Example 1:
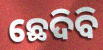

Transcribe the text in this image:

ଛେଦିବି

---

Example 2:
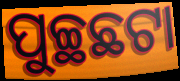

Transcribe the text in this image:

ପୁଚ୍ଛଛଟା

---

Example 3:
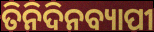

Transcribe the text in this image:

ତିନିଦିନବ୍ୟାପୀ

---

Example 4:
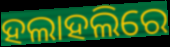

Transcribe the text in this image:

ହଲାହଲିରେ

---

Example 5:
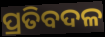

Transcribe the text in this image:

ପ୍ରତିବଦଳ